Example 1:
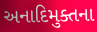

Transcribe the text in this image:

અનાદિમુક્તના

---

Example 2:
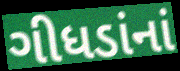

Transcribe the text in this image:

ગીધડાંનાં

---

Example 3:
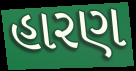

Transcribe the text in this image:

હારણ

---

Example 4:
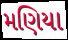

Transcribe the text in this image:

મણિયા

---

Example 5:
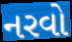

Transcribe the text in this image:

નરવો